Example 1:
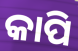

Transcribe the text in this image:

କାପି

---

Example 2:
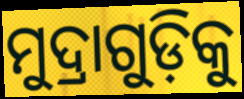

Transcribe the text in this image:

ମୁଦ୍ରାଗୁଡ଼ିକୁ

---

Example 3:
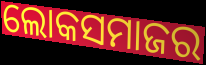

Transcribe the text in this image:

ଲୋକସମାଜର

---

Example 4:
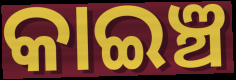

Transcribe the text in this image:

କାଇଞ୍ଚ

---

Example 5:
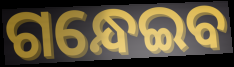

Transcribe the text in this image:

ଗନ୍ଧେଇବ